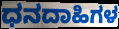
ಧನದಾಹಿಗಳ